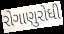
રોગાણુરોધી